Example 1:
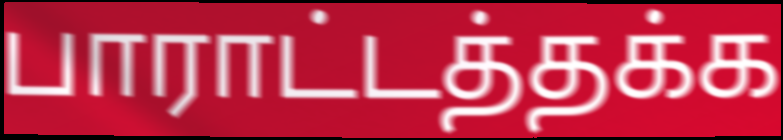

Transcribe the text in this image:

பாராட்டத்தக்க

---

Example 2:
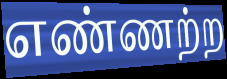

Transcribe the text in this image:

எண்ணற்ற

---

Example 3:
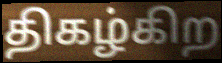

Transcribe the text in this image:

திகழ்கிற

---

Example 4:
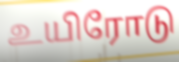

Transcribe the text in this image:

உயிரோடு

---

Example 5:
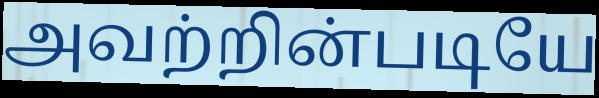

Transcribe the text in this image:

அவற்றின்படியே